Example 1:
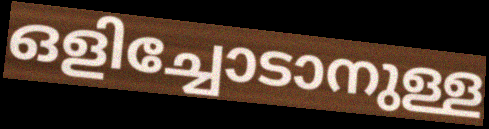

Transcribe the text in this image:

ഒളിച്ചോടാനുള്ള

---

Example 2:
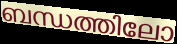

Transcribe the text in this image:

ബന്ധത്തിലോ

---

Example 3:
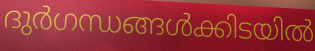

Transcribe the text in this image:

ദുർഗന്ധങ്ങൾക്കിടയിൽ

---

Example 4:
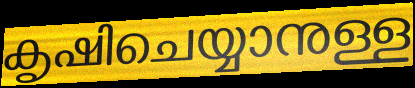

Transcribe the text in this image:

കൃഷിചെയ്യാനുള്ള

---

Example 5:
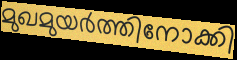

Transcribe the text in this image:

മുഖമുയർത്തിനോക്കി